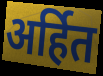
अर्हित